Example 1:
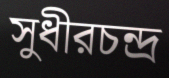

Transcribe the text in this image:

সুধীরচন্দ্র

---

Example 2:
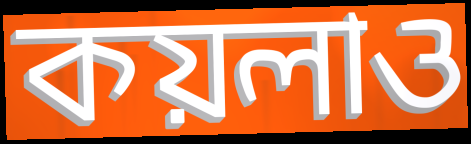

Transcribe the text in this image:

কয়লাও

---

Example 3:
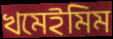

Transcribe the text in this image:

খমেইমিম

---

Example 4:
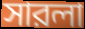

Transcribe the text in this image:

সারলা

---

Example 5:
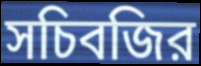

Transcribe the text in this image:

সচিবজির